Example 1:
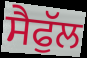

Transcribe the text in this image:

ਸੈਫੁੱਲ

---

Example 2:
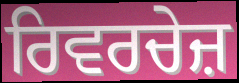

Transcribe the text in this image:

ਰਿਵਰਚੇਜ਼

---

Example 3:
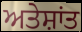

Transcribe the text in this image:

ਅਤੇਸ਼ਾਂਤ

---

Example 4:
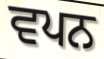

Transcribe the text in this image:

ਵਪਨ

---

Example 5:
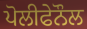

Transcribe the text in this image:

ਪੋਲੀਫੇਨੌਲ